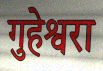
गुहेश्वरा